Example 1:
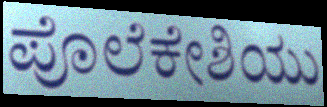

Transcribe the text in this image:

ಪೊಲೆಕೇಶಿಯು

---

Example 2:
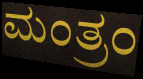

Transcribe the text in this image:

ಮಂತ್ರಂ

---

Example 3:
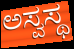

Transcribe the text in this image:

ಅಸ್ವಸ್ಥ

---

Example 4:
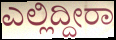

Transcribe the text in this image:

ಎಲ್ಲಿದ್ದೀರಾ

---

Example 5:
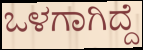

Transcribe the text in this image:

ಒಳಗಾಗಿದ್ದೆ